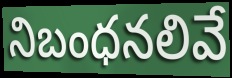
నిబంధనలివే